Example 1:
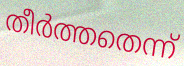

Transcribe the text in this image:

തീർത്തതെന്ന്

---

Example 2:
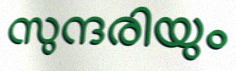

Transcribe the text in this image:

സുന്ദരിയും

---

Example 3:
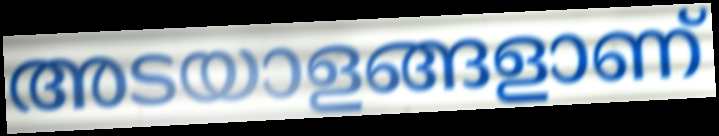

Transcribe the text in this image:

അടയാളങ്ങളാണ്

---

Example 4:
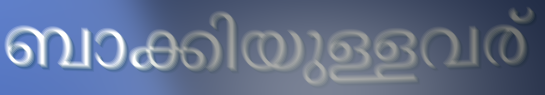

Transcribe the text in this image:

ബാക്കിയുള്ളവര്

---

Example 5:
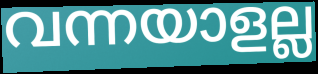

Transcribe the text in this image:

വന്നയാളല്ല